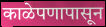
काळेपणापासून